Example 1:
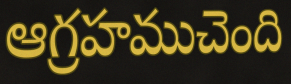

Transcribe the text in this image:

ఆగ్రహముచెంది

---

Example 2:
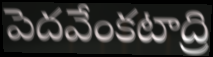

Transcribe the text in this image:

పెదవేంకటాద్రి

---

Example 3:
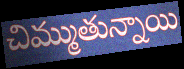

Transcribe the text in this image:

చిమ్ముతున్నాయి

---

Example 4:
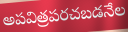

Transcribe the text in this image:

అపవిత్రపరచబడనేల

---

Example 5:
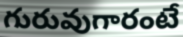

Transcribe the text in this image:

గురువుగారంటే